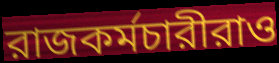
রাজকর্মচারীরাও